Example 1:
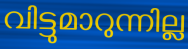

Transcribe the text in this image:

വിട്ടുമാറുന്നില്ല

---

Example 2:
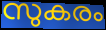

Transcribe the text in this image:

സുകരം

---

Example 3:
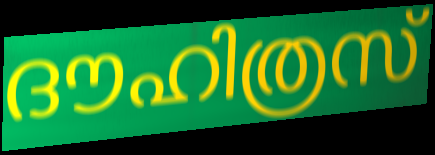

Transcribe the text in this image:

ദൗഹിത്രസ്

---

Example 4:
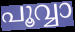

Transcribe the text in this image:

പൂവ്വാ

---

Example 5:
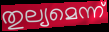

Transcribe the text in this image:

തുല്യമെന്ന്